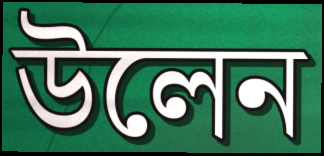
উলেন